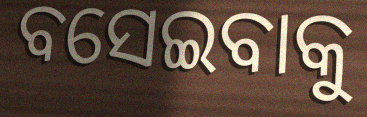
ବସେଇବାକୁ